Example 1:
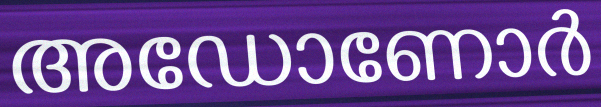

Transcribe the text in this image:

അഡോണോർ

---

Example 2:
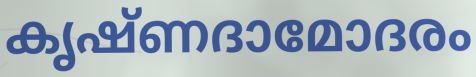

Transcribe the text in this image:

കൃഷ്ണദാമോദരം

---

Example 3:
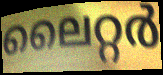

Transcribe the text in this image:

ലൈറ്റർ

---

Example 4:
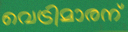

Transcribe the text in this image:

വെട്രിമാരന്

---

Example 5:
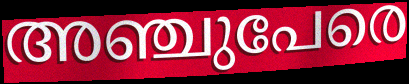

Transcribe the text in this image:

അഞ്ചുപേരെ